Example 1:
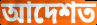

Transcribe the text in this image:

আদেশত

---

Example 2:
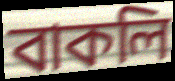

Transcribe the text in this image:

বাকলি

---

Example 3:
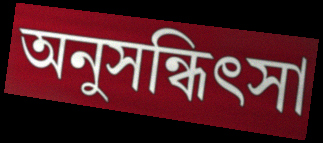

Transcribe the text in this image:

অনুসন্ধিৎসা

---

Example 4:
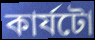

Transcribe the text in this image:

কাৰ্যটো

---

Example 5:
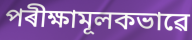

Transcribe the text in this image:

পৰীক্ষামূলকভাৱে